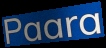
Paara